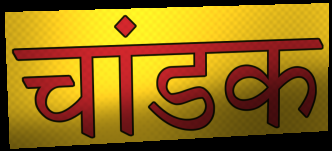
चांडक